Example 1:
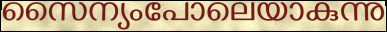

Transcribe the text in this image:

സൈന്യംപോലെയാകുന്നു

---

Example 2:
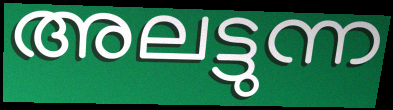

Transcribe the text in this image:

അലട്ടുന്ന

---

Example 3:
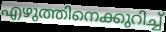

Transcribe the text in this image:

എഴുത്തിനെക്കുറിച്ച്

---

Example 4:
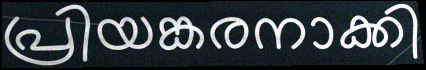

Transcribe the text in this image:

പ്രിയങ്കരനാക്കി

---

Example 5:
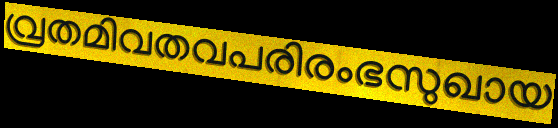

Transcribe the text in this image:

വ്രതമിവതവപരിരംഭസുഖായ